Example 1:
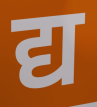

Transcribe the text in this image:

द्य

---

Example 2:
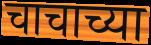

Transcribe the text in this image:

चाचाच्या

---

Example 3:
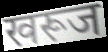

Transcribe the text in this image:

खरूज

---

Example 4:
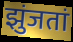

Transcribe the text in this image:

झुंजतां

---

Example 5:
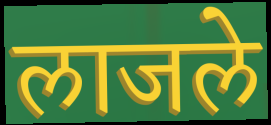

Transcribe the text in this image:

लाजले